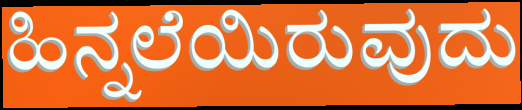
ಹಿನ್ನಲೆಯಿರುವುದು